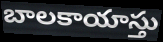
బాలకాయాస్తు